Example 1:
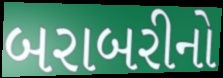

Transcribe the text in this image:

બરાબરીનો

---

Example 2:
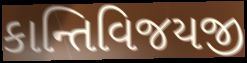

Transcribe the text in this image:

કાન્તિવિજયજી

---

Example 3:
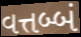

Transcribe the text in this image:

વત્તબ્બં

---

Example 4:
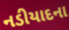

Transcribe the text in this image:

નડીયાદના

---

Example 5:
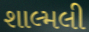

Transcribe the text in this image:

શાલ્મલી